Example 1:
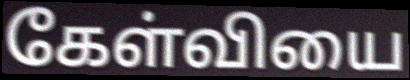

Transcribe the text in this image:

கேள்வியை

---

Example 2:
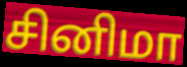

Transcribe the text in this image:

சினிமா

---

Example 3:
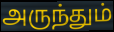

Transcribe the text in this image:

அருந்தும்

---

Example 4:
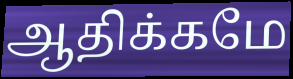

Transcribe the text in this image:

ஆதிக்கமே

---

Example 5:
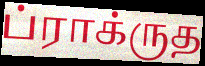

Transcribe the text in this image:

ப்ராக்ருத